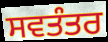
ਸਵਤੰਤਰ